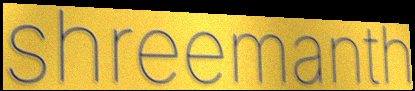
shreemanth